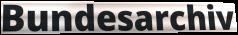
Bundesarchiv